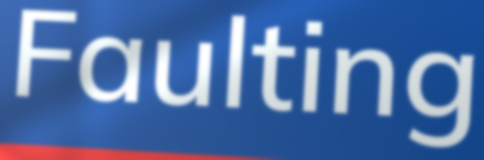
Faulting